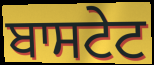
ਬਾਸਟੇਟ